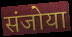
संजोया